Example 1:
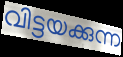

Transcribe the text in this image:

വിട്ടയക്കുന്ന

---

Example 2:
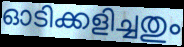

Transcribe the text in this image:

ഓടിക്കളിച്ചതും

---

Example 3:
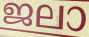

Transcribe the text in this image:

ജലാ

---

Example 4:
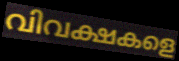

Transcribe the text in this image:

വിവക്ഷകളെ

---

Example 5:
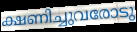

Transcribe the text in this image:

ക്ഷണിച്ചുവരോടു